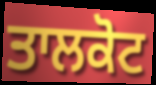
ਤਾਲਕੋਟ